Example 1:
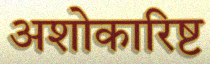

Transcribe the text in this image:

अशोकारिष्ट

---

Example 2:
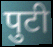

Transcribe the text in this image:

पुटी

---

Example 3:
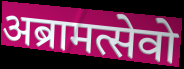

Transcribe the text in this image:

अब्रामत्सेवो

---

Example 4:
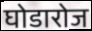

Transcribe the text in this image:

घोडारोज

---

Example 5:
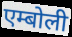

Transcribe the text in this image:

एम्बोली